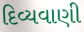
દિવ્યવાણી